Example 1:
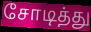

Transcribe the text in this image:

சோடித்து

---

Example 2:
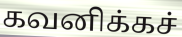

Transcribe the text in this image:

கவனிக்கச்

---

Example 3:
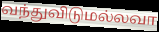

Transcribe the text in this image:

வந்துவிடுமல்லவா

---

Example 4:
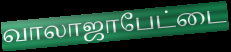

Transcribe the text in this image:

வாலாஜாபேட்டை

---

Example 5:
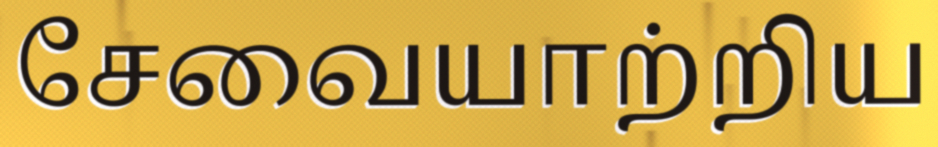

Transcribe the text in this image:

சேவையாற்றிய